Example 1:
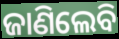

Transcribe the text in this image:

ଜାଣିଲେବି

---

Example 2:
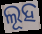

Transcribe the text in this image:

ଲୂହ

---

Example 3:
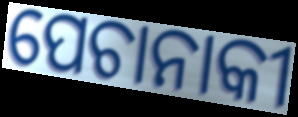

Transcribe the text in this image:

ପେଚାନାକୀ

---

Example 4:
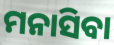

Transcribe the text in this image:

ମନାସିବା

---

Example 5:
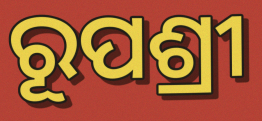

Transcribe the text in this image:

ରୂପଶ୍ରୀ